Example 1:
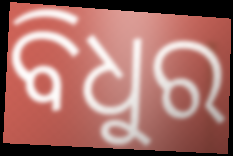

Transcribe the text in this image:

ବିଧୁର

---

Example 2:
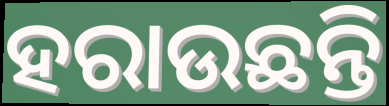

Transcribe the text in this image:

ହରାଉଛନ୍ତି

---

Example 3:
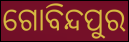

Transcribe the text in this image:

ଗୋବିନ୍ଦପୁର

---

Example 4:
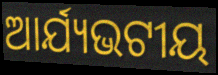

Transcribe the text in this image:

ଆର୍ଯ୍ୟଭଟୀୟ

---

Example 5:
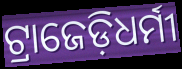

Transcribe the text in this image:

ଟ୍ରାଜେଡ଼ିଧର୍ମୀ